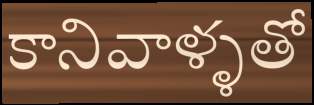
కానివాళ్ళతో